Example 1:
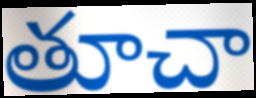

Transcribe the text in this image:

తూచా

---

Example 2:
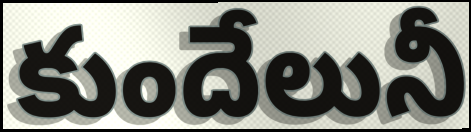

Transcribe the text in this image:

కుందేలునీ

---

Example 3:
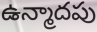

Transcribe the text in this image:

ఉన్మాదపు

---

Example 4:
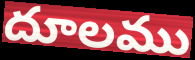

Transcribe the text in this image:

దూలము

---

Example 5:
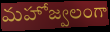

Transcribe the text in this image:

మహోజ్వలంగా